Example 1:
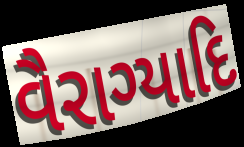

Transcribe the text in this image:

વૈરાગ્યાદિ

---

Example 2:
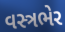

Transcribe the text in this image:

વસ્ત્રભેર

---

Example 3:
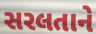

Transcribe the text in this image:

સરલતાને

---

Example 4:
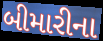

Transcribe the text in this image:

બીમારીના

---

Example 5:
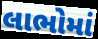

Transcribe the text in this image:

લાભોમાં